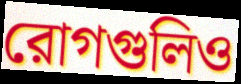
রোগগুলিও